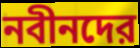
নবীনদের